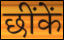
छींकें